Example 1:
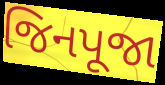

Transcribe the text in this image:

જિનપૂજા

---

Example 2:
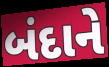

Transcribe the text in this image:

બંદાને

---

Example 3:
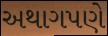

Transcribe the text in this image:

અથાગપણે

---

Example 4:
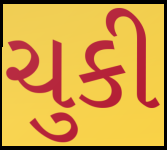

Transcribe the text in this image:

ચુકી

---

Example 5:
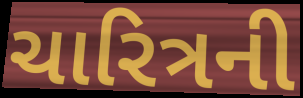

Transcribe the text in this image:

ચારિત્રની